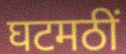
घटमठीं